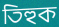
তিহুক